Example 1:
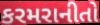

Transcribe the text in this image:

કરમરાનીતો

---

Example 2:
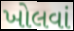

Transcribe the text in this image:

ખોલવાં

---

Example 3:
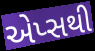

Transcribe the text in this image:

એપ્સથી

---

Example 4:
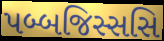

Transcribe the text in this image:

પબ્બજિસ્સસિ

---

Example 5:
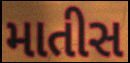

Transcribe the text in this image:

માતીસ